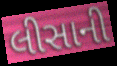
લીસાની